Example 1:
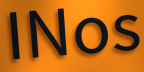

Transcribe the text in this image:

INos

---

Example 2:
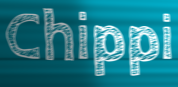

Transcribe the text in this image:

Chippi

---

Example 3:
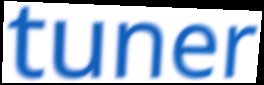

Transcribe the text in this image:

tuner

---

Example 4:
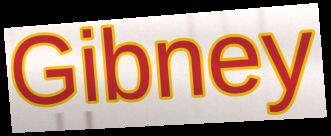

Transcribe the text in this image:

Gibney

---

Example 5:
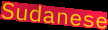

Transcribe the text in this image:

Sudanese